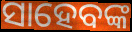
ସାହେବଙ୍କ